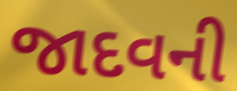
જાદવની